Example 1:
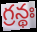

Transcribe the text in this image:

గ్రన్థః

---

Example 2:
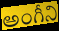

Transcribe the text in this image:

అంగీని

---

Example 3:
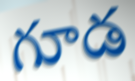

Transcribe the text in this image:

గూడ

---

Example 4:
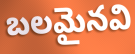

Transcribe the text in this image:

బలమైనవి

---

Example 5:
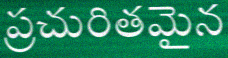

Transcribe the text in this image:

ప్రచురితమైన